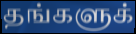
தங்களுக்